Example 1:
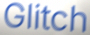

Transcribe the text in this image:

Glitch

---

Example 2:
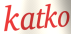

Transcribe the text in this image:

katko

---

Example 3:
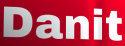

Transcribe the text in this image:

Danit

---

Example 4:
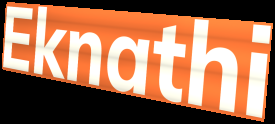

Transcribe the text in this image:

Eknathi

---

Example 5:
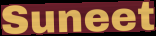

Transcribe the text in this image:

Suneet